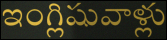
ఇంగ్లిషువాళ్లు